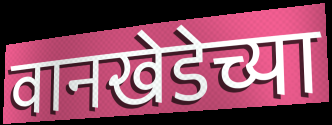
वानखेडेच्या